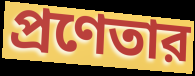
প্রণেতার